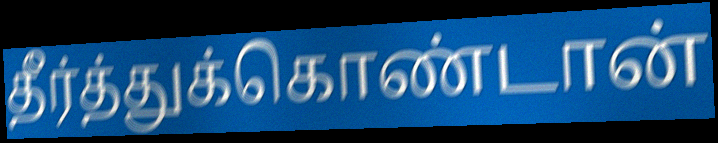
தீர்த்துக்கொண்டான்